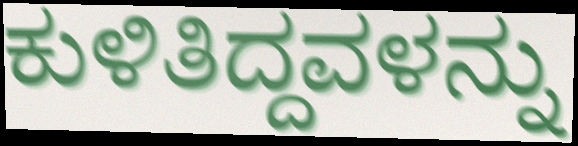
ಕುಳಿತಿದ್ದವಳನ್ನು